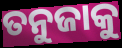
ତନୁଜାକୁ